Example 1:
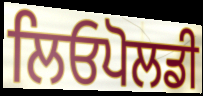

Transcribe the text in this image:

ਲਿਓਪੋਲਡੀ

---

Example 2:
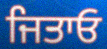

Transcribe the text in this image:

ਜਿਤਾਓ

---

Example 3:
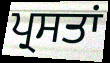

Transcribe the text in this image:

ਪ੍ਰਸਤਾਂ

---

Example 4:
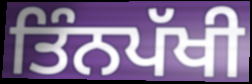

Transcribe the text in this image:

ਤਿੰਨਪੱਖੀ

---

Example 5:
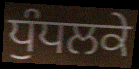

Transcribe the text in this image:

ਧੁੰਧਲਕੇ